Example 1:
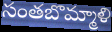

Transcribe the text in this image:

సంతబొమ్మాళి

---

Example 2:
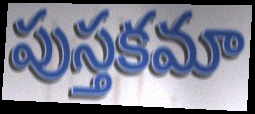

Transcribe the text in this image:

పుస్తకమా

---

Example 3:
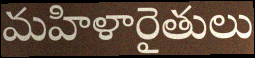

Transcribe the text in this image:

మహిళారైతులు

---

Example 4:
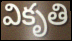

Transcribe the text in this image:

వికృతి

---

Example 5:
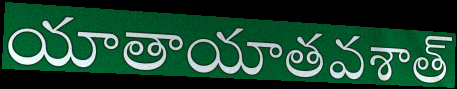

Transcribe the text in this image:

యాతాయాతవశాత్